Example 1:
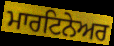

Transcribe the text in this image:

ਮਾਰਟਿਨੇਅਰ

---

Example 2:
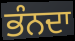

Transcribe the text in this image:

ਭੰਨਦਾ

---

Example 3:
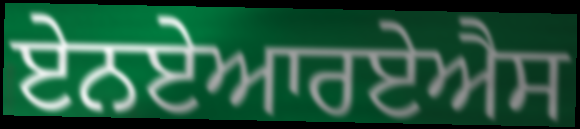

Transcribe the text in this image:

ਏਨਏਆਰਏਐਸ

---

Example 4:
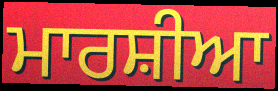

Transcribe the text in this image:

ਮਾਰਸ਼ੀਆ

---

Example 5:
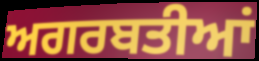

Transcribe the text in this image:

ਅਗਰਬਤੀਆਂ